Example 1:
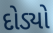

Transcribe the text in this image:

દોડ્યો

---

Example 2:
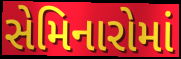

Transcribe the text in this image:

સેમિનારોમાં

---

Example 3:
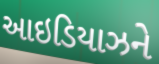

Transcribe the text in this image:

આઇડિયાઝને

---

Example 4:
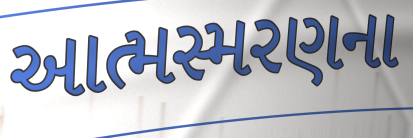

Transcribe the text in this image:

આત્મસ્મરણના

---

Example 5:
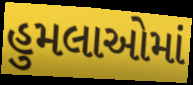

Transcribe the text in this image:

હુમલાઓમાં